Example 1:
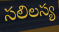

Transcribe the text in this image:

సలిలస్య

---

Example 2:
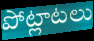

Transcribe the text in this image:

పోట్లాటలు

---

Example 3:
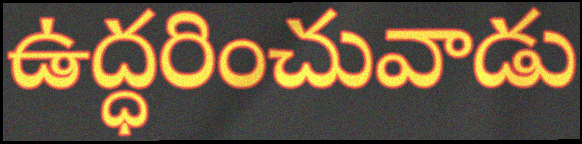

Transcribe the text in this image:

ఉద్ధరించువాడు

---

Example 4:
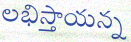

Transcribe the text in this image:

లభిస్తాయన్న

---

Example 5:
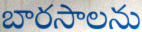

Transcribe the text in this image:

బారసాలను